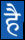
है